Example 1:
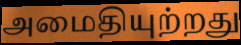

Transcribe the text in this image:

அமைதியுற்றது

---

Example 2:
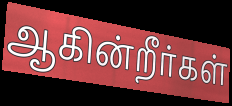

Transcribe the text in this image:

ஆகின்றீர்கள்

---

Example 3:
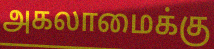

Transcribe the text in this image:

அகலாமைக்கு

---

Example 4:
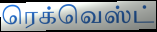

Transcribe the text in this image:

ரெக்வெஸ்ட்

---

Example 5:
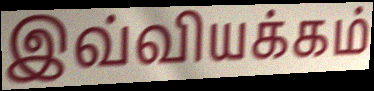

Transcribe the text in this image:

இவ்வியக்கம்